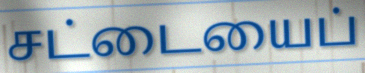
சட்டையைப்